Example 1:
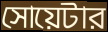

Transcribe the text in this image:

সোয়েটার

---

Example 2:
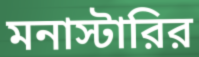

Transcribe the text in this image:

মনাস্টারির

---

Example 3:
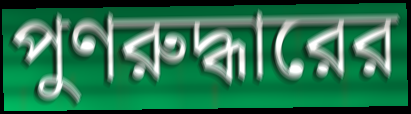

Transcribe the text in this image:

পুণরুদ্ধারের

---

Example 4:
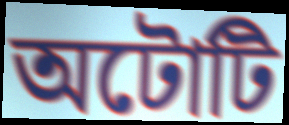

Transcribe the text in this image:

অটোটি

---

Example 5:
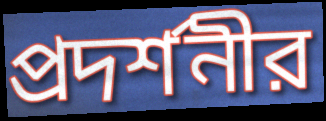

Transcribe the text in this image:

প্রদর্শনীর